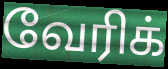
வேரிக்